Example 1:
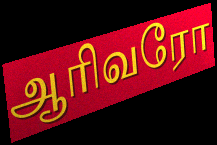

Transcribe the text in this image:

ஆரிவரோ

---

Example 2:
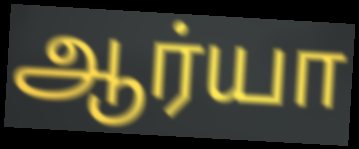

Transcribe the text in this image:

ஆர்யா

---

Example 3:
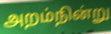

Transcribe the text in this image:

அறம்நின்று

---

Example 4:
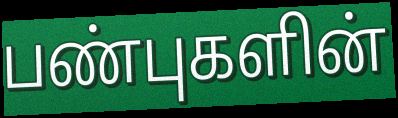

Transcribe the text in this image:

பண்புகளின்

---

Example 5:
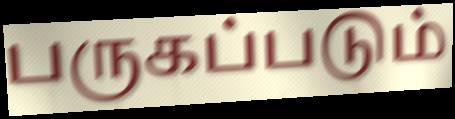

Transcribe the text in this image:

பருகப்படும்